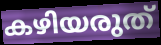
കഴിയരുത്